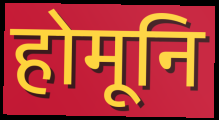
होमूनि